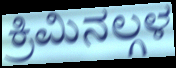
ಕ್ರಿಮಿನಲ್ಗಳ